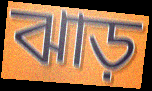
ঝাড়